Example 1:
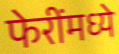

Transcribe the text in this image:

फेरींमध्ये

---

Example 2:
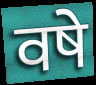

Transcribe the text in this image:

वषे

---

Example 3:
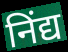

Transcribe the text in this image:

निंद्य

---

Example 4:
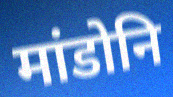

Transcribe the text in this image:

मांडोनि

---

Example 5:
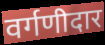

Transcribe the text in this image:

वर्गणीदार